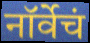
नॉर्वेचं